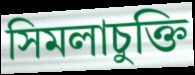
সিমলাচুক্তি